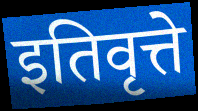
इतिवृत्ते